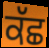
ਕੱਛ